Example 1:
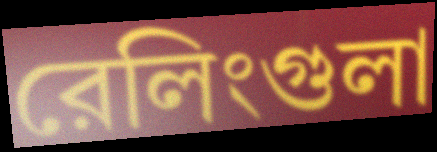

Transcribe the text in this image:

রেলিংগুলা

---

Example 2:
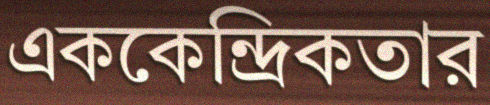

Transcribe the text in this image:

এককেন্দ্রিকতার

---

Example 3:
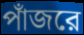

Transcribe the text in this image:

পাঁজরে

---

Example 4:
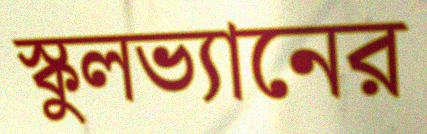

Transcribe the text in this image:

স্কুলভ্যানের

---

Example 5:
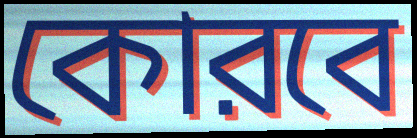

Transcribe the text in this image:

কোরবে